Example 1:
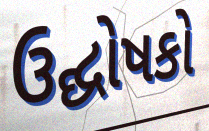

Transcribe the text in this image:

ઉદ્ઘોષકો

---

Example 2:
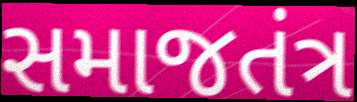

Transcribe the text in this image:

સમાજતંત્ર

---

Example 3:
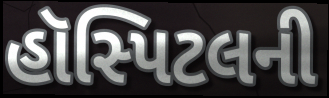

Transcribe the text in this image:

હૉસ્પિટલની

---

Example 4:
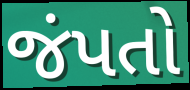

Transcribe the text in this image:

જંપતો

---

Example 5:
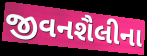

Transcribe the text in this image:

જીવનશૈલીના